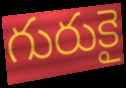
గురుకై